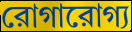
রোগারোগ্য